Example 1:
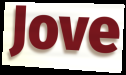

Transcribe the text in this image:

Jove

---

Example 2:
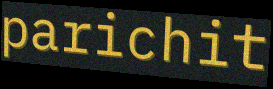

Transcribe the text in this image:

parichit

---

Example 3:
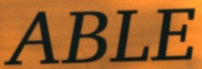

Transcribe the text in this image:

ABLE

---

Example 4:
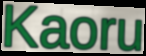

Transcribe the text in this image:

Kaoru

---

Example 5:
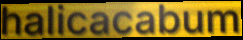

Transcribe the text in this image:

halicacabum